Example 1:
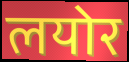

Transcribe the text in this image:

लयोर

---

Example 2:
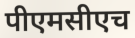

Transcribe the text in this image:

पीएमसीएच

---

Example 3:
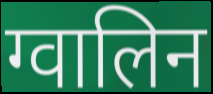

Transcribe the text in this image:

ग्वालिन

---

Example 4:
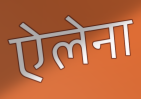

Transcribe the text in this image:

ऐलेना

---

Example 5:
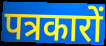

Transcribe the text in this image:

पत्रकारों